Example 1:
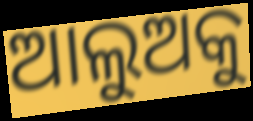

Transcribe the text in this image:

ଆଲୁଅକୁ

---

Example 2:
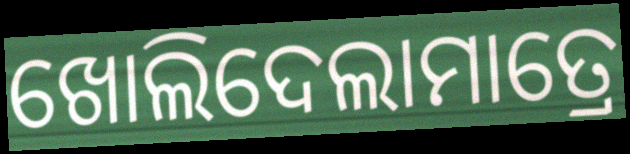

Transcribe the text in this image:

ଖୋଲିଦେଲାମାତ୍ରେ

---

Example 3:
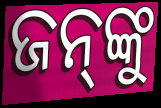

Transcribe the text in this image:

ଜନ୍‍ଙ୍କୁ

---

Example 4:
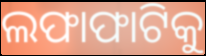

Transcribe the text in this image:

ଲଫାଫାଟିକୁ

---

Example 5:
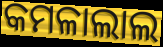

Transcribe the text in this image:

କମଳାଲାଲ